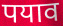
पयाव